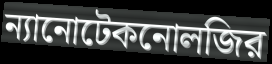
ন্যানোটেকনোলজির